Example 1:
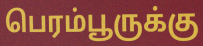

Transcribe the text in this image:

பெரம்பூருக்கு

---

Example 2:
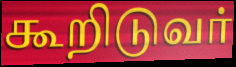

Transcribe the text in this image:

கூறிடுவர்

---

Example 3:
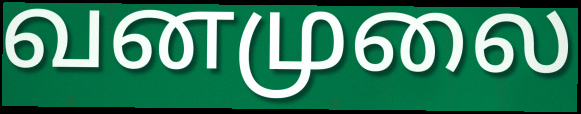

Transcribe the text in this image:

வனமுலை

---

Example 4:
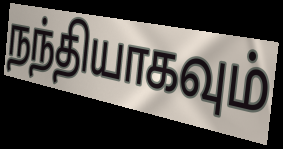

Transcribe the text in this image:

நந்தியாகவும்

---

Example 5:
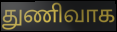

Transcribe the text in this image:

துணிவாக